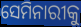
ସେମିନାରୀକୁ